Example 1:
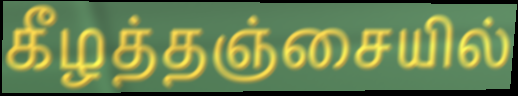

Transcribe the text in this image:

கீழத்தஞ்சையில்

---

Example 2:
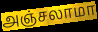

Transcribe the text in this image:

அஞ்சலாமா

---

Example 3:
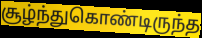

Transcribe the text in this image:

சூழ்ந்துகொண்டிருந்த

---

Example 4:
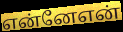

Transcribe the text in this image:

என்னேஎன்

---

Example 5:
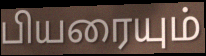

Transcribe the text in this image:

பியரையும்